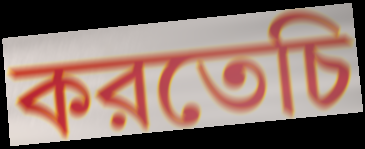
করতেচি